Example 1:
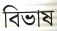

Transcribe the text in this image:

বিভাষ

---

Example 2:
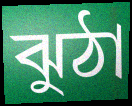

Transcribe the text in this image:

ঝুঠা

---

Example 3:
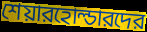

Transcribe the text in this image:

শেয়ারহোল্ডারদের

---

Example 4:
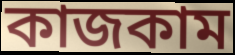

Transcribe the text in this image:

কাজকাম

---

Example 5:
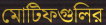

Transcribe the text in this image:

মোটিফগুলির